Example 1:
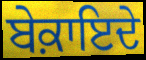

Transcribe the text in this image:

ਬੇਕ਼ਾਇਦੇ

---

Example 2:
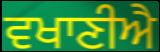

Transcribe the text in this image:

ਵਖਾਣੀਐ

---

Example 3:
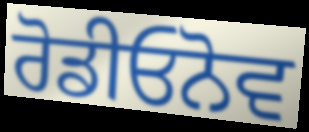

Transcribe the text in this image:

ਰੋਡੀਓਨੋਵ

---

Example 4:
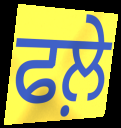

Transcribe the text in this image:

ਫਲ਼ੇ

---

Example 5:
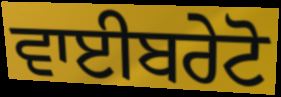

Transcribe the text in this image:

ਵਾਈਬਰੇਟੋ